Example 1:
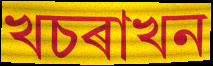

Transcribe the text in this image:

খচৰাখন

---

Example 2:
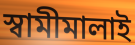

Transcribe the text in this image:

স্বামীমালাই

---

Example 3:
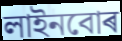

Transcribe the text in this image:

লাইনবোৰ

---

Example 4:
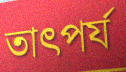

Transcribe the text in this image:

তাৎপৰ্য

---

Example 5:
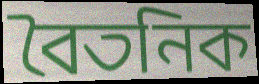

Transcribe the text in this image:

বৈতনিক